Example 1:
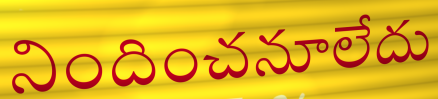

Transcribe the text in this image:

నిందించనూలేదు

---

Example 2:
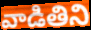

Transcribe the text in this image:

వాడితిని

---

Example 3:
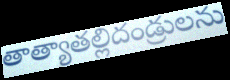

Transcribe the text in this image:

తాత్యాతల్లిదండ్రులను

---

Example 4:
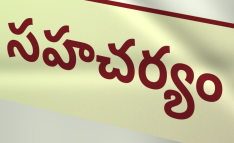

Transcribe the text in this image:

సహచర్యం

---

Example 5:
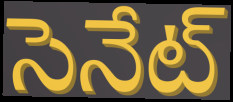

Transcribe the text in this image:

సెనేట్